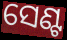
ସେଣ୍ଟ